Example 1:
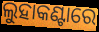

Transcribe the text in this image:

ଲୁହାକଣ୍ଟାରେ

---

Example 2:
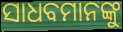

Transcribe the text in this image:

ସାଧବମାନଙ୍କୁ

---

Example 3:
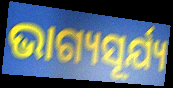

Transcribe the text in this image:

ଭାଗ୍ୟସୂର୍ଯ୍ୟ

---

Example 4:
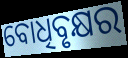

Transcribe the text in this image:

ବୋଧିବୃକ୍ଷର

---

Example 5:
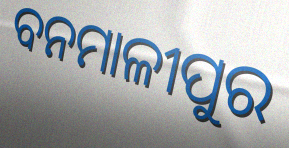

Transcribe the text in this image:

ବନମାଳୀପୁର